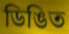
ডিঙিত